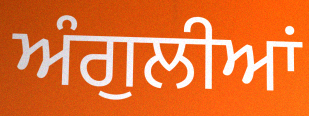
ਅੰਗੁਲੀਆਂ